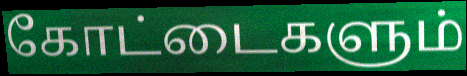
கோட்டைகளும்